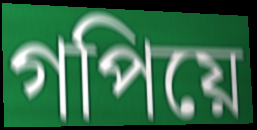
গপিয়ে